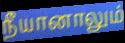
நீயானாலும்